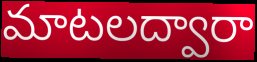
మాటలద్వారా